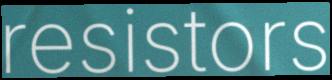
resistors